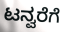
ಟನ್ವರೆಗೆ